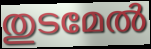
തുടമേൽ